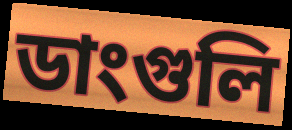
ডাংগুলি